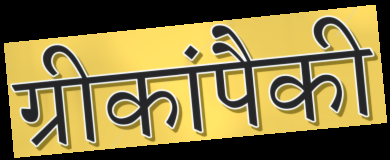
ग्रीकांपैकी